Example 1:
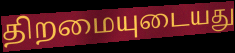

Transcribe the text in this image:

திறமையுடையது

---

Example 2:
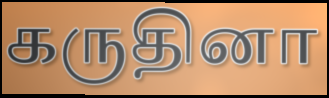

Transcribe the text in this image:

கருதினா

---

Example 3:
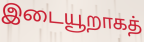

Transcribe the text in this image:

இடையூறாகத்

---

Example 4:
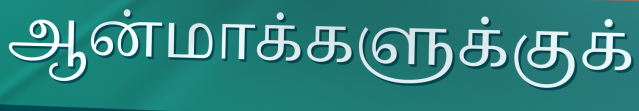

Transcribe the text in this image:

ஆன்மாக்களுக்குக்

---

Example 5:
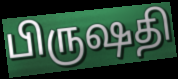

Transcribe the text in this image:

பிருஷதி